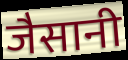
जैसानी